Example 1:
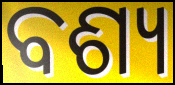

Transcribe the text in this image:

ବଶ୍ୟ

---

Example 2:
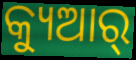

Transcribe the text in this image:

କ୍ୟୁଆର୍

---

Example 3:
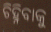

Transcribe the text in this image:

ଚିହ୍ନିବାକୁ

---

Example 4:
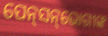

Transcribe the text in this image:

ପେନ୍‌ସନ୍‌ଭୋଗୀଙ୍କ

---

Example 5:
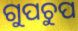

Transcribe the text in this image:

ଗୁପଚୁପ